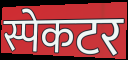
स्पेकटर